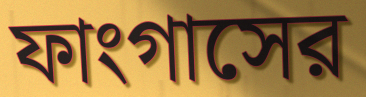
ফাংগাসের